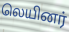
லெயினர்